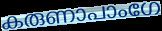
കരുണാപാംഗേ